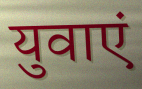
युवाएं